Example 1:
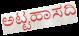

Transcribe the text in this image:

ಅಟ್ಟಹಾಸದಿ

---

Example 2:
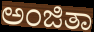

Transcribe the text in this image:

ಅಂಜಿತಾ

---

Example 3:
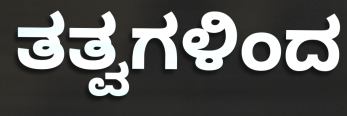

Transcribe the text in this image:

ತತ್ವಗಳಿಂದ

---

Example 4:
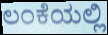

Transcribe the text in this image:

ಲಂಕೆಯಲ್ಲಿ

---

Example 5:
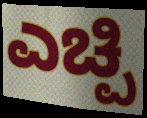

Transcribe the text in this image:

ಎಚ್ಪಿ